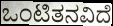
ಒಂಟಿತನವಿದೆ